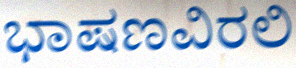
ಭಾಷಣವಿರಲಿ